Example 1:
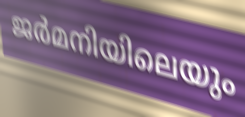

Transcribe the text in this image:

ജർമനിയിലെയും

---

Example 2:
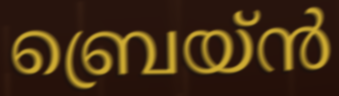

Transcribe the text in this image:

ബ്രെയ്ൻ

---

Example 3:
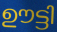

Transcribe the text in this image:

ഊട്ടി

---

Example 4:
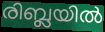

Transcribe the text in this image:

രിബ്ലയിൽ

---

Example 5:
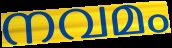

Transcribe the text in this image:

നവമം